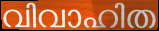
വിവാഹിത